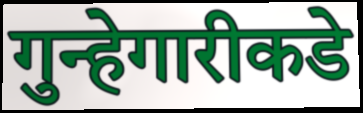
गुन्हेगारीकडे